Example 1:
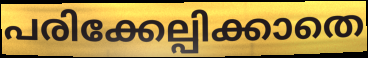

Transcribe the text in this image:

പരിക്കേല്പിക്കാതെ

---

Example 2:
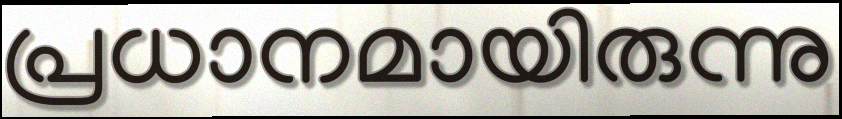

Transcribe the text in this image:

പ്രധാനമായിരുന്നു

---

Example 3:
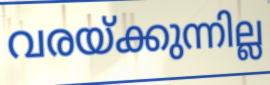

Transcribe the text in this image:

വരയ്ക്കുന്നില്ല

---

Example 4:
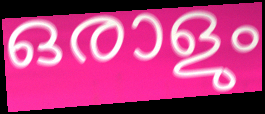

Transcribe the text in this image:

ഒരാളും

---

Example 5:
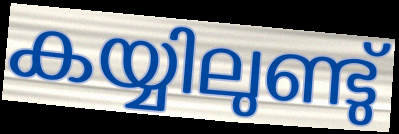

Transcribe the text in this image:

കയ്യിലുണ്ടു്